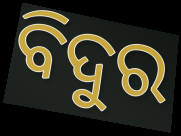
ବିଦୁର